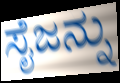
ಸೈಜನ್ನು